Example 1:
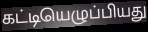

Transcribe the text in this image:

கட்டியெழுப்பியது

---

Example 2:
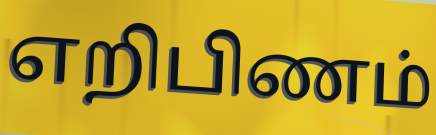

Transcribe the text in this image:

எறிபிணம்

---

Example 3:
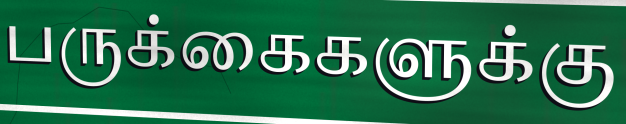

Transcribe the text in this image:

பருக்கைகளுக்கு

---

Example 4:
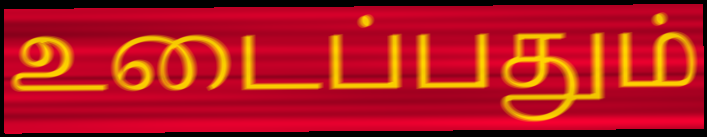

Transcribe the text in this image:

உடைப்பதும்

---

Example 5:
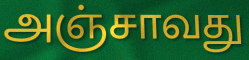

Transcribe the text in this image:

அஞ்சாவது